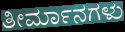
ತೀರ್ಮಾನಗಳು